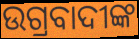
ଉଗ୍ରବାଦୀଙ୍କ